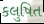
કલુષિત